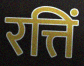
रत्तिं